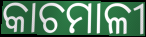
କାଚମାଳୀ